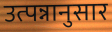
उत्पन्नानुसार